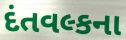
દંતવલ્કના